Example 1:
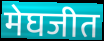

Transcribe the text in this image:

मेघजीत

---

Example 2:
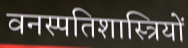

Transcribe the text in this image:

वनस्पतिशास्त्रियों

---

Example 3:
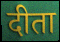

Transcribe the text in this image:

दीता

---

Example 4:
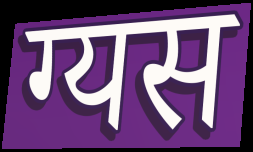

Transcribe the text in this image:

ग्यस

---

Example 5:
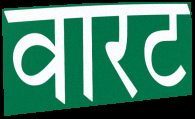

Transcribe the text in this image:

वारट